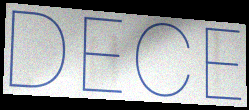
DECE